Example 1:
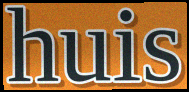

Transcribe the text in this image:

huis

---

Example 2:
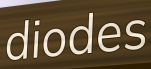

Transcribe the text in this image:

diodes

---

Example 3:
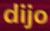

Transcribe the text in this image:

dijo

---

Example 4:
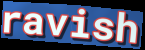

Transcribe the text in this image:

ravish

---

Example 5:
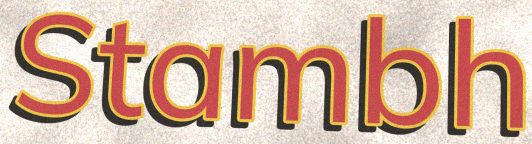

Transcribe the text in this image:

Stambh